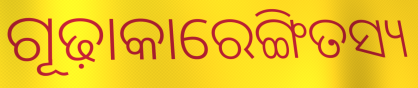
ଗୂଢ଼ାକାରେଙ୍ଗିତସ୍ୟ